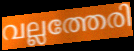
വല്ലത്തേരി